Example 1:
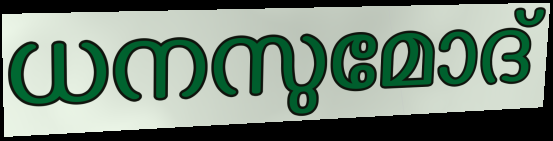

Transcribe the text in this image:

ധനസുമോദ്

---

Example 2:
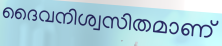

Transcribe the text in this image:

ദൈവനിശ്വസിതമാണ്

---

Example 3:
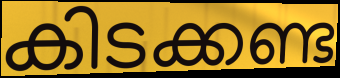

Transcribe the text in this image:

കിടക്കണ്ട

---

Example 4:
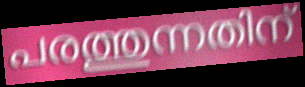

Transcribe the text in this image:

പരത്തുന്നതിന്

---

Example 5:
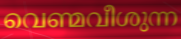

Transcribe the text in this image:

വെണ്മവീശുന്ന